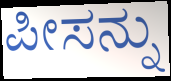
ಪೀಸನ್ನು